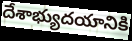
దేశాభ్యుదయానికి